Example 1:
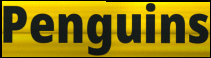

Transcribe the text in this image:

Penguins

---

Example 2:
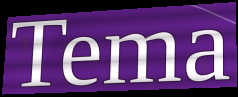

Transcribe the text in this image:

Tema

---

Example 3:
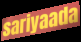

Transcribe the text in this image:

sariyaada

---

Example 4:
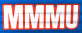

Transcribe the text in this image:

MMMU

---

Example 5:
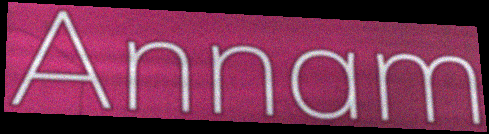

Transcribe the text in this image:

Annam